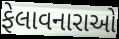
ફેલાવનારાઓ